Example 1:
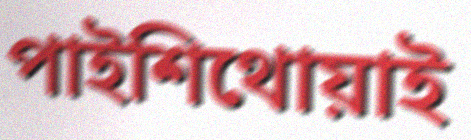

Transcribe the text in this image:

পাইশিথোয়াই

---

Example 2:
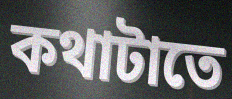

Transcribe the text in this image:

কথাটাতে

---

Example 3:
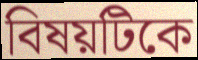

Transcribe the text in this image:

বিষয়টিকে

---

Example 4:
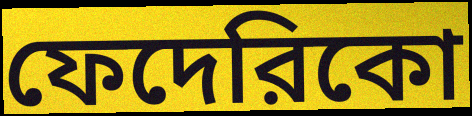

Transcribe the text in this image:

ফেদেরিকো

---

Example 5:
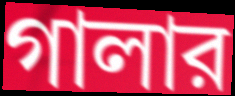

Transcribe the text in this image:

গালার